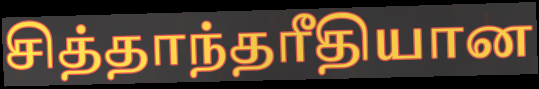
சித்தாந்தரீதியான